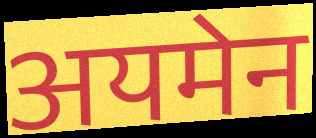
अयमेन